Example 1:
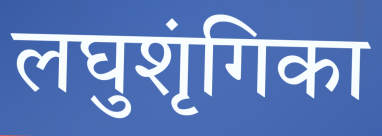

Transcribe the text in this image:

लघुशृंगिका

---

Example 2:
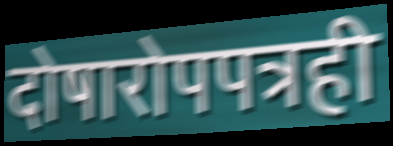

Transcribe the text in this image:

दोषारोपपत्रही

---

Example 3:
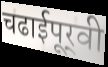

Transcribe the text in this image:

चढाईपूर्वी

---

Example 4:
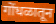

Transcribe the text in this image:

गोंधळातून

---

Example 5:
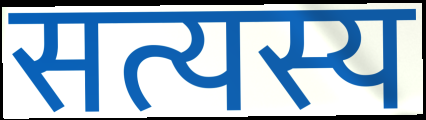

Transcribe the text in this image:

सत्यस्य